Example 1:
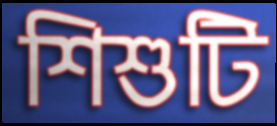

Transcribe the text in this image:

শিশুটি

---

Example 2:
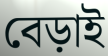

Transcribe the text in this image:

বেড়াই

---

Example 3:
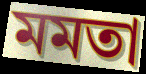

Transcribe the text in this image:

মমতা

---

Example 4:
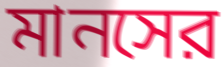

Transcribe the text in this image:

মানসের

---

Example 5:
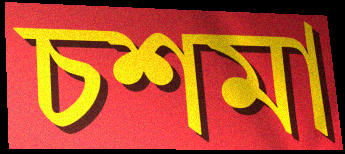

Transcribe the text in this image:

চশমা